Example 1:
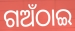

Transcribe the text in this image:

ଗଅଁଠାଇ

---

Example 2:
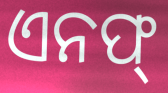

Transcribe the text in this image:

ଏନଫ୍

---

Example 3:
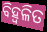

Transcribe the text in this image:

ବିହ୍ୱଳିତ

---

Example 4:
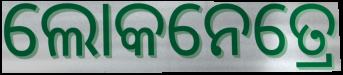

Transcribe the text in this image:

ଲୋକନେତ୍ରେ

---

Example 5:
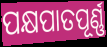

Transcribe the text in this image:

ପକ୍ଷପାତପୂର୍ଣ୍ଣ